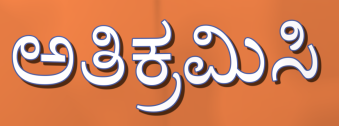
ಅತಿಕ್ರಮಿಸಿ